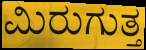
ಮಿರುಗುತ್ತ